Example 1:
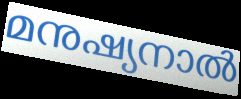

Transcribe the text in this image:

മനുഷ്യനാൽ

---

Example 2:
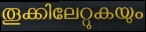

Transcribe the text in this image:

തൂക്കിലേറ്റുകയും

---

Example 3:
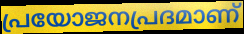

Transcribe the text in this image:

പ്രയോജനപ്രദമാണ്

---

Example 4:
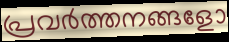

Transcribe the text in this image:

പ്രവർത്തനങ്ങളോ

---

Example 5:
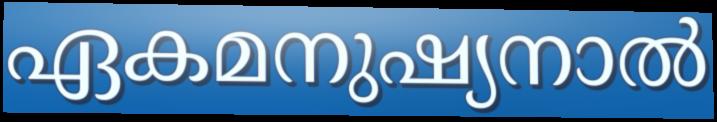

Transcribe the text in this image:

ഏകമനുഷ്യനാൽ